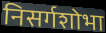
निसर्गशोभा